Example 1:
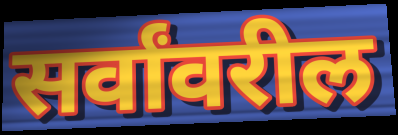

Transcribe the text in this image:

सर्वांवरील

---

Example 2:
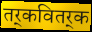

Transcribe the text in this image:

तर्कवितर्क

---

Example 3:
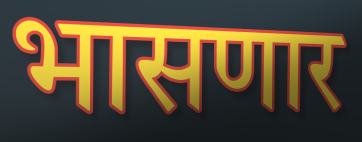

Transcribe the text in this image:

भासणार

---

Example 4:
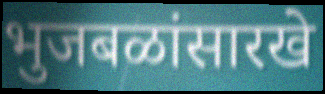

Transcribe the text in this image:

भुजबळांसारखे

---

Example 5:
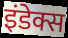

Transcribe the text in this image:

इंडेक्स